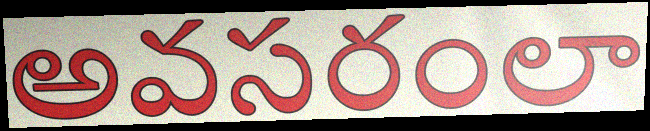
అవసరంలా